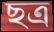
ছত্র